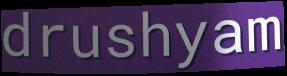
drushyam